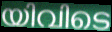
യിവിടെ